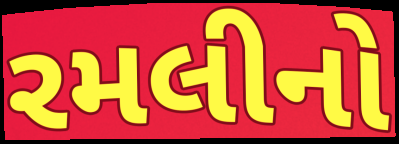
રમલીનો